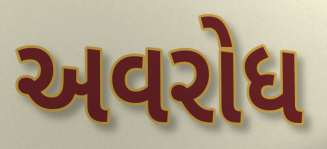
અવરોધ